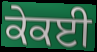
ਕੇਕਈ